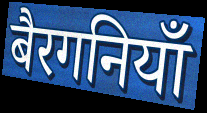
बैरगनियाँ